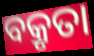
ବକ୍ରୃତା